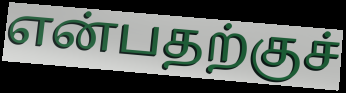
என்பதற்குச்